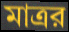
মাত্রর